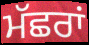
ਮੱਛਰਾਂ